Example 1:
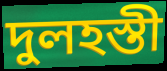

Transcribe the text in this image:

দুলহস্তী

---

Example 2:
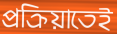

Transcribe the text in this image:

প্রক্রিয়াতেই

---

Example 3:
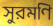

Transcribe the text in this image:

সুরমণি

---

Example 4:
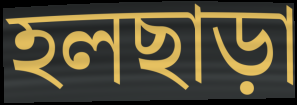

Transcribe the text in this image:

হলছাড়া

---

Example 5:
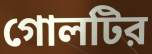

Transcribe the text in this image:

গোলটির